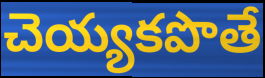
చెయ్యకపొతే